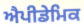
ਐਪੀਡੇਮਿਕ